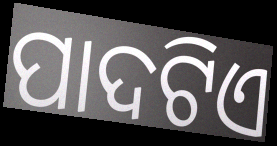
ପାଦଟିଏ